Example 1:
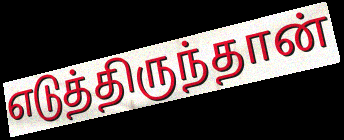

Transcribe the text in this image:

எடுத்திருந்தான்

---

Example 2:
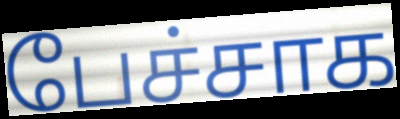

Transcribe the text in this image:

பேச்சாக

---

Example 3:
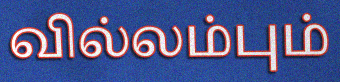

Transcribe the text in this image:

வில்லம்பும்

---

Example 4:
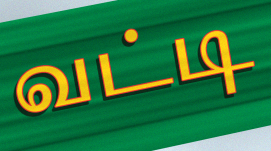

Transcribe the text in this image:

வட்டி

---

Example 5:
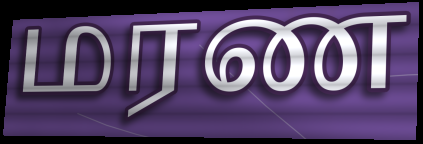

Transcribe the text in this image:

மரண